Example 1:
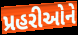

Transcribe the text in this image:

પ્રહરીઓને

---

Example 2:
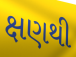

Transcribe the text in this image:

ક્ષણથી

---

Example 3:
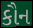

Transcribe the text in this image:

કૌન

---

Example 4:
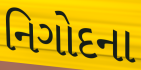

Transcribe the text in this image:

નિગોદના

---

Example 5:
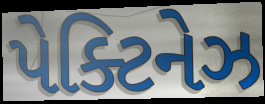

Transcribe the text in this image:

પેક્ટિનેઝ